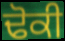
ਢੋਕੀ